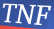
TNF